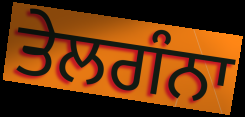
ਤੇਲਗੰਨਾ